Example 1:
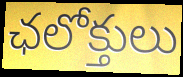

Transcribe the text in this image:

ఛలోక్తులు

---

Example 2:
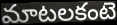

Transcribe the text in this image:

మాటలకంటె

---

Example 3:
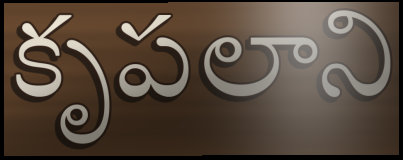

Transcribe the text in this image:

కృపలాని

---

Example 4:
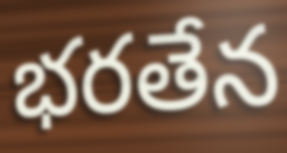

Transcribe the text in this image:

భరతేన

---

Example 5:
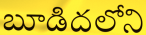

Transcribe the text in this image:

బూడిదలోని